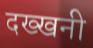
दख्खनी